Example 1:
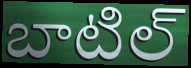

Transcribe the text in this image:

బాటిల్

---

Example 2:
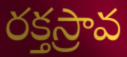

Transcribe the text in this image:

రక్తస్రావ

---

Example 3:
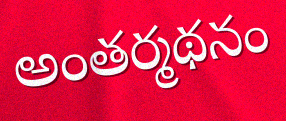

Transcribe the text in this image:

అంతర్మథనం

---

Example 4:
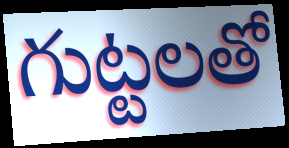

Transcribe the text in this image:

గుట్టలతో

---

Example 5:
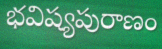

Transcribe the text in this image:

భవిష్యపురాణం